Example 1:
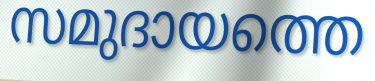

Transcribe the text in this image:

സമുദായത്തെ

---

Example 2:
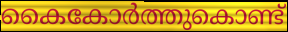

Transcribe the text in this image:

കൈകോർത്തുകൊണ്ട്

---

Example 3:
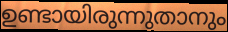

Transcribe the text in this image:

ഉണ്ടായിരുന്നുതാനും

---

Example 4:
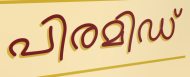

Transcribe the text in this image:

പിരമിഡ്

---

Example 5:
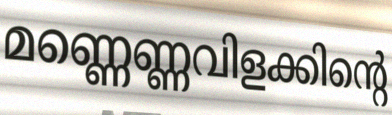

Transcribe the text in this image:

മണ്ണെണ്ണവിളക്കിന്റെ